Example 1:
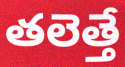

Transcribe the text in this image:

తలెత్తే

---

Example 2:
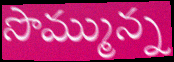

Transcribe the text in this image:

సొమ్మున్న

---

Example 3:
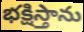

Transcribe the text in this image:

భక్షిస్తాను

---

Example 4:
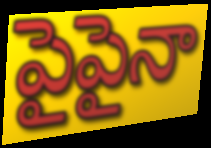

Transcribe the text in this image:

పైపైనా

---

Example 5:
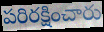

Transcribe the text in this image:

పరిరక్షించారు